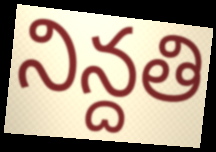
నిన్దతి